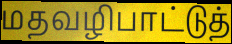
மதவழிபாட்டுத்